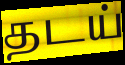
தடய்